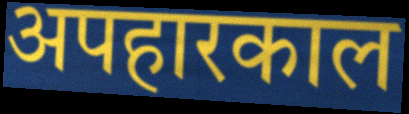
अपहारकाल